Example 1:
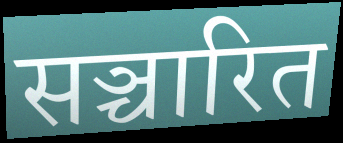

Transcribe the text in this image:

सञ्चारित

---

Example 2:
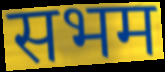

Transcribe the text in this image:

सभम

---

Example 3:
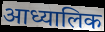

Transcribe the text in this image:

आध्यालिक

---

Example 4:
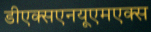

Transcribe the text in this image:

डीएक्सएनयूएमएक्स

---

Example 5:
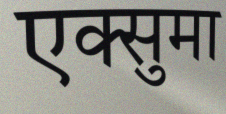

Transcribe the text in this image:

एक्सुमा